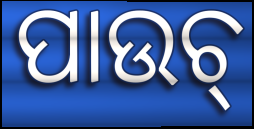
ପାଉଚ୍